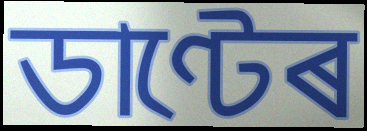
ডাণ্টেৰ